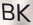
BK